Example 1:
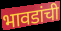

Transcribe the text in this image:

भावडांची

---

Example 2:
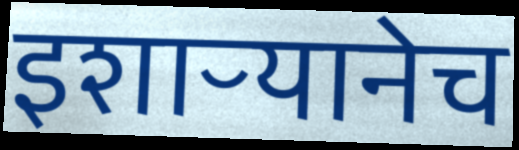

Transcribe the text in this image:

इशाऱ्यानेच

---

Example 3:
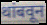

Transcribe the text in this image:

थांबवून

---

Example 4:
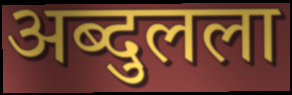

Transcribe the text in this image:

अब्दुलला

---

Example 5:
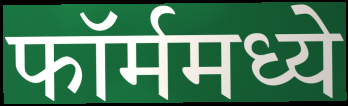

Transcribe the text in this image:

फॉर्ममध्ये